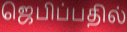
ஜெபிப்பதில்